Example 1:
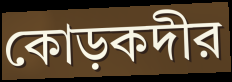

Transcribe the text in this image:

কোড়কদীর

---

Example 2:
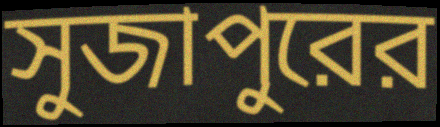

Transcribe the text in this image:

সুজাপুরের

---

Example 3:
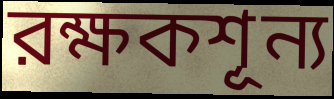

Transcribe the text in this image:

রক্ষকশূন্য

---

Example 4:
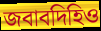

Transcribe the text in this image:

জবাবদিহিও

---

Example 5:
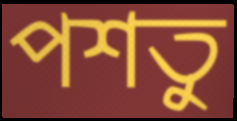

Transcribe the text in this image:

পশতু